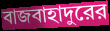
বাজবাহাদুরের